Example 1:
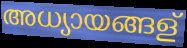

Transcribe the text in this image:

അധ്യായങ്ങള്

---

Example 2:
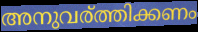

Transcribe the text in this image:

അനുവര്ത്തിക്കണം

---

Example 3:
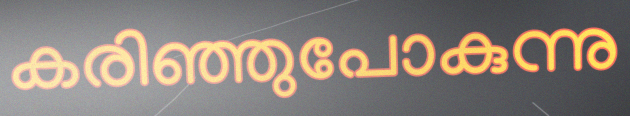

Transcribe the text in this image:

കരിഞ്ഞുപോകുന്നു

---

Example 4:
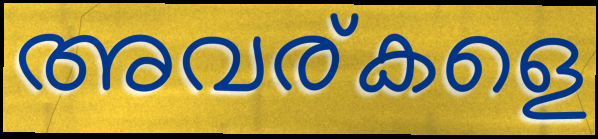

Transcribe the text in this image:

അവര്കളെ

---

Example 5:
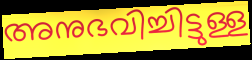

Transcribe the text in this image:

അനുഭവിച്ചിട്ടുള്ള